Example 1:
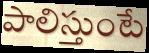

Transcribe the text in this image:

పాలిస్తుంటే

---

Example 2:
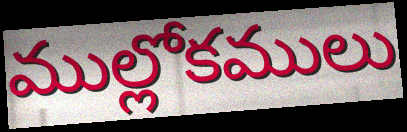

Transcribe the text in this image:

ముల్లోకములు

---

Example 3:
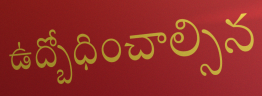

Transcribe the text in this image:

ఉద్బోధించాల్సిన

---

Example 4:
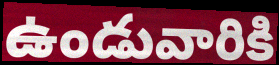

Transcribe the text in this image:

ఉండువారికి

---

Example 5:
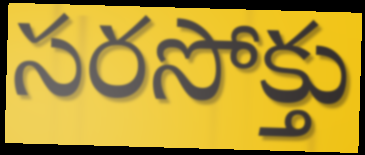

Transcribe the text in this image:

సరసోక్తు